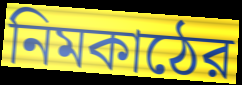
নিমকাঠের